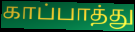
காப்பாத்து